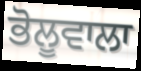
ਭੋਲੂਵਾਲਾ